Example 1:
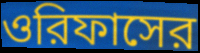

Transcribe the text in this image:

ওরিফাসের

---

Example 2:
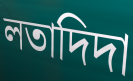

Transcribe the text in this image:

লতাদিদা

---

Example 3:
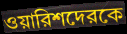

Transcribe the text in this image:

ওয়ারিশদেরকে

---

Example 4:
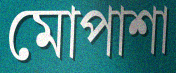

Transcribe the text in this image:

মোপাশা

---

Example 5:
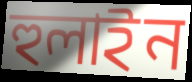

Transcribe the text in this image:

হুলাইন